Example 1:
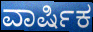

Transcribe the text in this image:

ವಾರ್ಷಿಕ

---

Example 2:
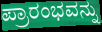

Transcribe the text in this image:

ಪ್ರಾರಂಭವನ್ನು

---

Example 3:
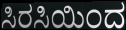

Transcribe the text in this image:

ಸಿರಸಿಯಿಂದ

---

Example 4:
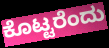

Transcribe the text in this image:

ಕೊಟ್ಟರೆಂದು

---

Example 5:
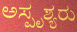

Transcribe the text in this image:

ಅಸ್ಪೃಶ್ಯರು